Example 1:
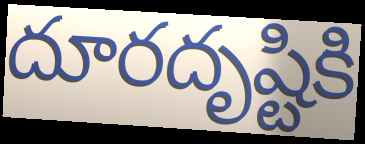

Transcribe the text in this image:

దూరదృష్టికి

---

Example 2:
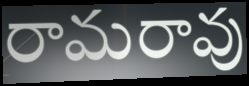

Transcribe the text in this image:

రామరావు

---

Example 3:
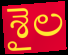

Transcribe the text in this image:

శైల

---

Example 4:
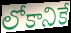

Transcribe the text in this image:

లోకానికే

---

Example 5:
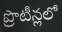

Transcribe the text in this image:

ప్రొటీన్లలో